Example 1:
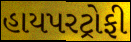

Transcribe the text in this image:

હાયપરટ્રોફી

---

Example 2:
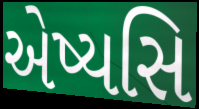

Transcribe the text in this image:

એષ્યસિ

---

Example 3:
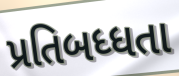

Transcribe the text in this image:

પ્રતિબધ્ધતા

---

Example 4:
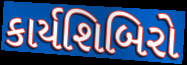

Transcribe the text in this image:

કાર્યશિબિરો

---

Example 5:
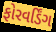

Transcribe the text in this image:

ફોરવર્ડિંગ